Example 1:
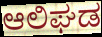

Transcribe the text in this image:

ಆಲಿಘಡ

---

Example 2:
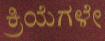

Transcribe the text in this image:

ಕ್ರಿಯೆಗಳೇ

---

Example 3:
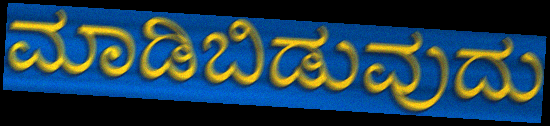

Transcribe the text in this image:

ಮಾಡಿಬಿಡುವುದು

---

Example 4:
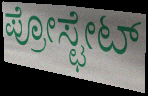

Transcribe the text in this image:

ಪ್ರೋಸ್ಟೇಟ್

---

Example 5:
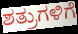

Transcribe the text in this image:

ಶತ್ರುಗಳಿಗೆ